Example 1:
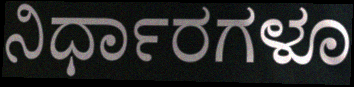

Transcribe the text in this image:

ನಿರ್ಧಾರಗಳೂ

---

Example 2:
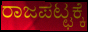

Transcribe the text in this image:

ರಾಜಪಟ್ಟಕ್ಕೆ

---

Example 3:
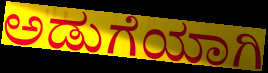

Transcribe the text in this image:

ಅಡುಗೆಯಾಗಿ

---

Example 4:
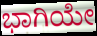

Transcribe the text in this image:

ಭಾಗಿಯೇ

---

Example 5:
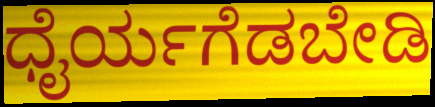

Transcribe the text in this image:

ಧೈರ್ಯಗೆಡಬೇಡಿ